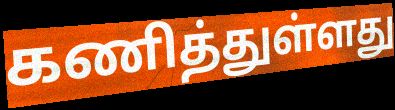
கணித்துள்ளது